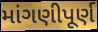
માંગણીપૂર્ણ